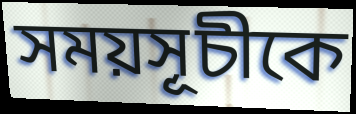
সময়সূচীকে